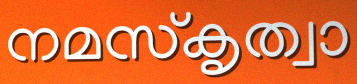
നമസ്കൃത്വാ